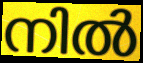
നിൽ